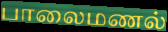
பாலைமணல்